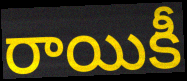
రాయికీ